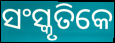
ସଂସ୍କୃତିକେ